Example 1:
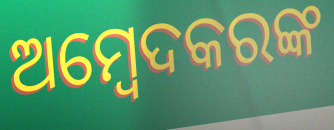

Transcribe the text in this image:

ଅମ୍ବେଦକରଙ୍କ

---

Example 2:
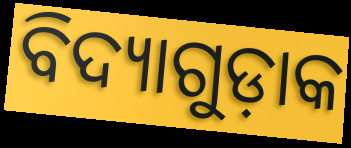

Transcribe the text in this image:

ବିଦ୍ୟାଗୁଡ଼ାକ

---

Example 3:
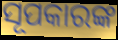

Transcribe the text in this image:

ସୂପକାରଙ୍କ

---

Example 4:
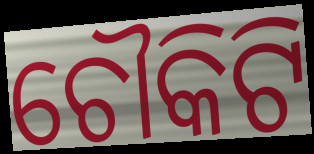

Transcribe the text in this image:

ଚୌକିଟି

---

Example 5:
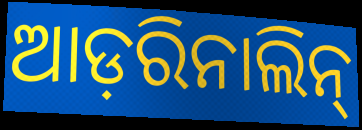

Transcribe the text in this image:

ଆଡ଼ରିନାଲିନ୍